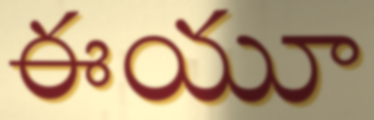
ఈయూ